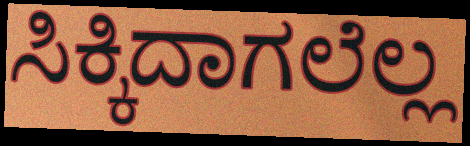
ಸಿಕ್ಕಿದಾಗಲೆಲ್ಲ